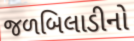
જળબિલાડીનો